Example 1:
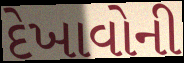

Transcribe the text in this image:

દેખાવોની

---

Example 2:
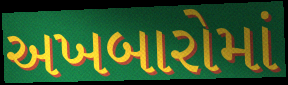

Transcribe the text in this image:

અખબારોમાં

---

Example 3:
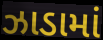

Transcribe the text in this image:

ઝાડામાં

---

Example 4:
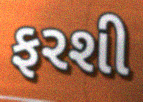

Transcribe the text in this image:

ફરશી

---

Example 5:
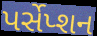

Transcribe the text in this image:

પર્સેપ્શન